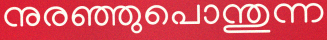
നുരഞ്ഞുപൊന്തുന്ന